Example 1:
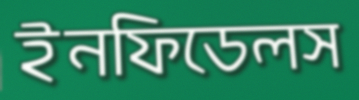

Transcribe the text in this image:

ইনফিডেলস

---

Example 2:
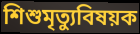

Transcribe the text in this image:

শিশুমৃত্যুবিষয়ক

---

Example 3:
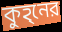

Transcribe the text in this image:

কুহ্‌নের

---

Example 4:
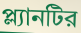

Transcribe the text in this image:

প্ল্যানটির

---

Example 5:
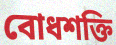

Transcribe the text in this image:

বোধশক্তি